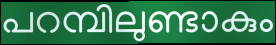
പറമ്പിലുണ്ടാകും